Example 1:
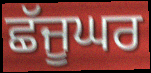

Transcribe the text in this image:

ਛੱਜੂਘਰ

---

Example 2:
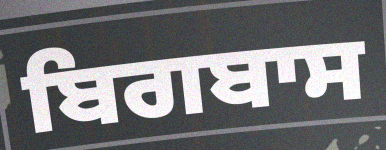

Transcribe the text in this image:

ਬਿਗਬਾਸ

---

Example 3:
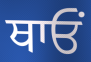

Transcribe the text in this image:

ਥਾਓਂ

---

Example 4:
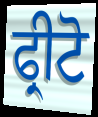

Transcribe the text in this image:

ਫ੍ਰੀਟੋ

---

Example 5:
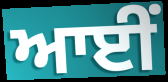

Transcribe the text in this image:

ਆਈਂ